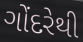
ગોંદરેથી